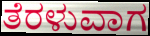
ತೆರಳುವಾಗ